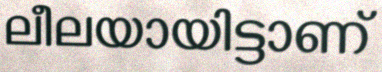
ലീലയായിട്ടാണ്